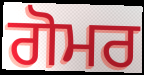
ਗੋਮਰ